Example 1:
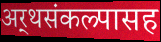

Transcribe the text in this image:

अर्थसंकल्पासह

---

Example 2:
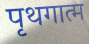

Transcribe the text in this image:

पृथगात्म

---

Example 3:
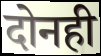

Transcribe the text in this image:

दोनही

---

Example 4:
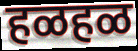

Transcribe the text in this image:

हळहळ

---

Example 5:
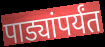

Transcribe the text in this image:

पाड्यांपर्यंत